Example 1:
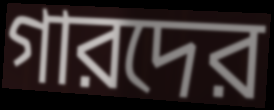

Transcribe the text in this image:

গারদের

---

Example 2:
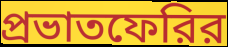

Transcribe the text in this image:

প্রভাতফেরির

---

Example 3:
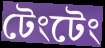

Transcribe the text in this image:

টেংটেং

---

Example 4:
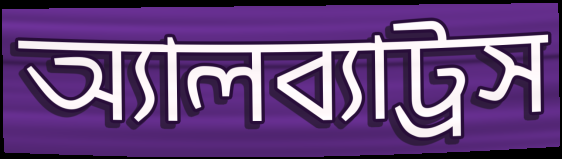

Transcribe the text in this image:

অ্যালব্যাট্রস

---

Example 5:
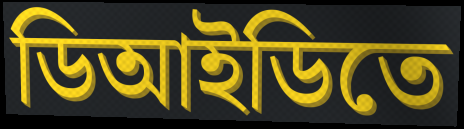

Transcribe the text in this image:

ডিআইডিতে